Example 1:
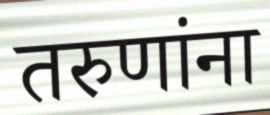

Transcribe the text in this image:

तरुणांना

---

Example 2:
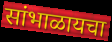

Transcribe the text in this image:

सांभाळायचा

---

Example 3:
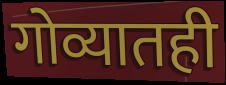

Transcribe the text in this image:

गोव्यातही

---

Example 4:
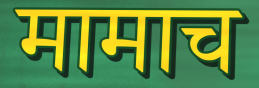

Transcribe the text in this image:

मामाच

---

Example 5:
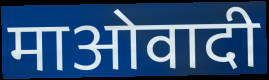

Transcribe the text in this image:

माओवादी